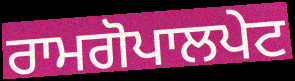
ਰਾਮਗੋਪਾਲਪੇਟ